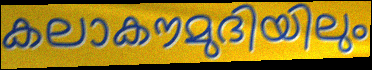
കലാകൗമുദിയിലും